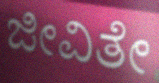
ಜೀವಿತೇ